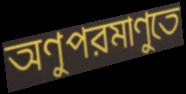
অণুপরমাণুতে